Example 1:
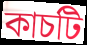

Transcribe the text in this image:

কাচটি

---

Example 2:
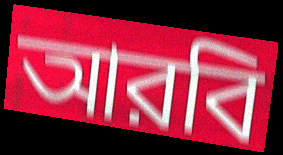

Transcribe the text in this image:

আরবি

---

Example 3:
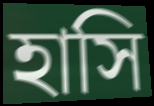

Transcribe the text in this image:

হাসি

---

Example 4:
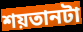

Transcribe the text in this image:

শয়তানটা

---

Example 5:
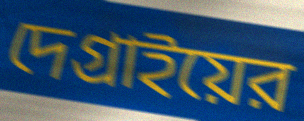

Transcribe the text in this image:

দেগ্রাইয়ের